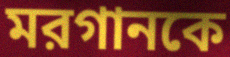
মরগানকে